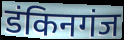
डंकिनगंज